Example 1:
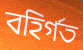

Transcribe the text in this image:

বহির্গত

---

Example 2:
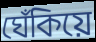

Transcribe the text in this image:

ঘেঁকিয়ে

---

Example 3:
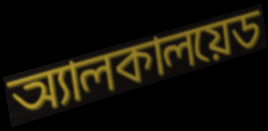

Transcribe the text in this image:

অ্যালকালয়েড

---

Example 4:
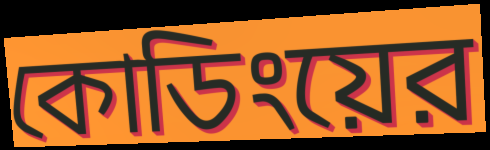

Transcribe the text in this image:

কোডিংয়ের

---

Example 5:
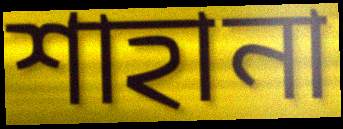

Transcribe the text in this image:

শাহানা